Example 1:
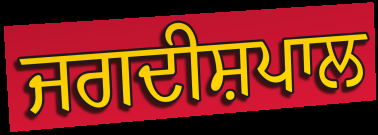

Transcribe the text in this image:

ਜਗਦੀਸ਼ਪਾਲ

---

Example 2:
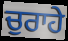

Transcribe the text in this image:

ਚੁਰਾਹੇ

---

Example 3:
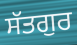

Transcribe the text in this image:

ਸੱਤਗੁਰ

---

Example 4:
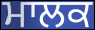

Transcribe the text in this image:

ਮਾਲਕ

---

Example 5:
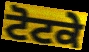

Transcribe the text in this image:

ਟੋਟਕੇ